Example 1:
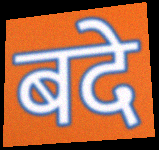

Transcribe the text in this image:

बदे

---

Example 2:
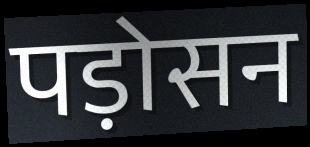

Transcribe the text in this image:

पड़ोसन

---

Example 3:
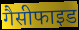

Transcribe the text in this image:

गैसीफाइड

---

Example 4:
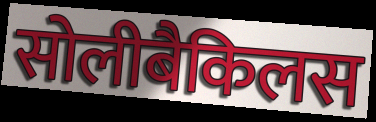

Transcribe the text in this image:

सोलीबैकिलस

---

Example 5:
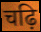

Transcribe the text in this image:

चढ़ि